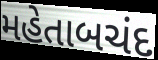
મહેતાબચંદ